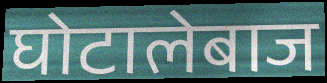
घोटालेबाज